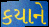
કયાને